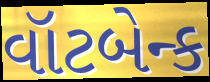
વૉટબેન્ક